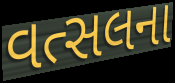
વત્સલના